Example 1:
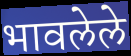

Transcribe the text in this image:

भावलेले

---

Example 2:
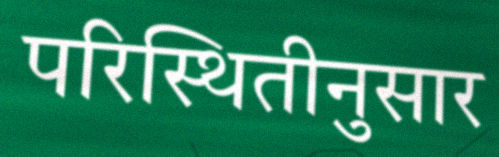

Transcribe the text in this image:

परिस्थितीनुसार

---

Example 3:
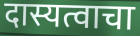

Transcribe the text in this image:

दास्यत्वाचा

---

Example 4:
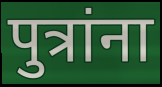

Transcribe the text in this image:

पुत्रांना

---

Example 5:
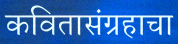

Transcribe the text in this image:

कवितासंग्रहाचा